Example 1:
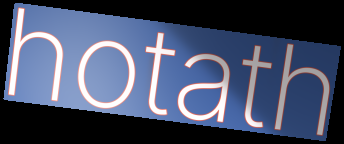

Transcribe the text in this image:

hotath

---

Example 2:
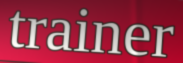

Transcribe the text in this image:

trainer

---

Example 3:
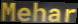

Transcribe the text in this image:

Mehar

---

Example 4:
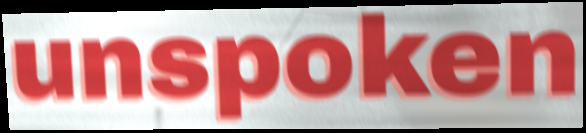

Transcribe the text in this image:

unspoken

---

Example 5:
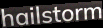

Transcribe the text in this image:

hailstorm